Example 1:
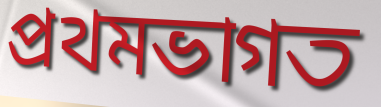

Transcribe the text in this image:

প্ৰথমভাগত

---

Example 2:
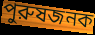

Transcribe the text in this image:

পুৰুষজনক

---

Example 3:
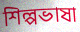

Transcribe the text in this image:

শিল্পভাষা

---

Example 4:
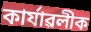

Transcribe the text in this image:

কাৰ্যাৱলীক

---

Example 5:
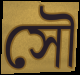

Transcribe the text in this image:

সৌ